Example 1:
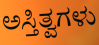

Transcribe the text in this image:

ಅಸ್ತಿತ್ವಗಳು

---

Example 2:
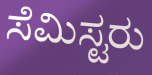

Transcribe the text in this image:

ಸೆಮಿಸ್ಟರು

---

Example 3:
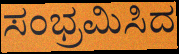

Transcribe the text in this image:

ಸಂಭ್ರಮಿಸಿದ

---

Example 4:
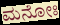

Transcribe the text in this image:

ಮನೋಃ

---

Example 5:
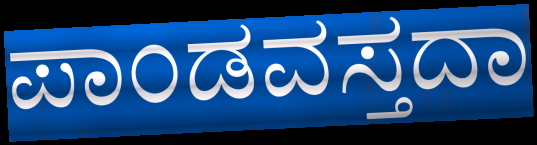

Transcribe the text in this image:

ಪಾಂಡವಸ್ತದಾ